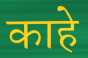
काहे